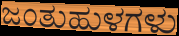
ಜಂತುಹುಳಗಳು